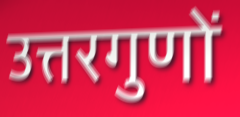
उत्तरगुणों